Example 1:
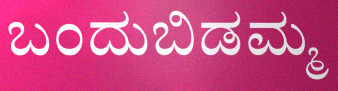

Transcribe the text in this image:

ಬಂದುಬಿಡಮ್ಮ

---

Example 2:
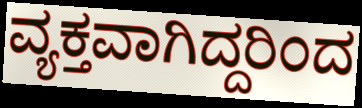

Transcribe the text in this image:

ವ್ಯಕ್ತವಾಗಿದ್ದರಿಂದ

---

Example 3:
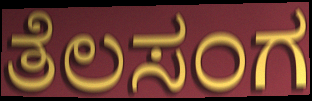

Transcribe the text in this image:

ತೆಲಸಂಗ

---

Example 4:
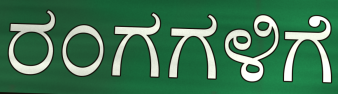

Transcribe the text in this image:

ರಂಗಗಳಿಗೆ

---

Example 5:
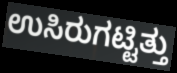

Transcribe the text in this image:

ಉಸಿರುಗಟ್ಟಿತ್ತು